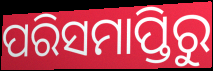
ପରିସମାପ୍ତିରୁ